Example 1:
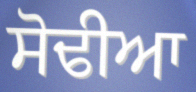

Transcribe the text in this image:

ਸੋਢੀਆ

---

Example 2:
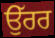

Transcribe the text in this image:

ਉੱਰਰ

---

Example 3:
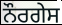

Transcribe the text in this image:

ਨੌਰਗੇਸ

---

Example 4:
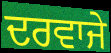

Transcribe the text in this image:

ਦਰਵਾਜੇ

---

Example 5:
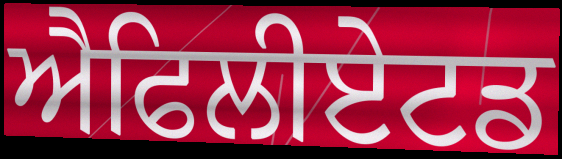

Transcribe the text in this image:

ਐਫਿਲੀਏਟਡ